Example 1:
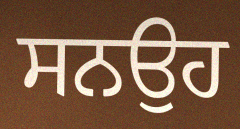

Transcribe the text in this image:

ਸਨਉਹ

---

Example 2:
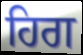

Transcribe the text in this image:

ਹਿਗ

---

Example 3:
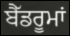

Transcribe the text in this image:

ਬੈੱਡਰੂਮਾਂ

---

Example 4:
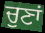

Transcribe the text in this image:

ਚੁਣਾਂ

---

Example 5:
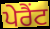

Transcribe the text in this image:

ਪੇਰੈਂਟ